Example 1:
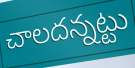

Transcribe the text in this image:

చాలదన్నట్టు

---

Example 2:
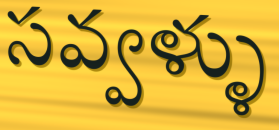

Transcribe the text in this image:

సవ్వళ్ళు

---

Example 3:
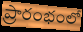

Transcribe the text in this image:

ప్రారంభంలో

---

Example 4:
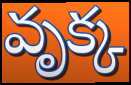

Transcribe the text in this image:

వృక్క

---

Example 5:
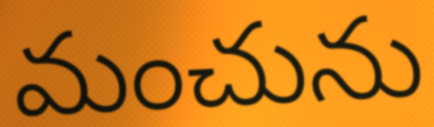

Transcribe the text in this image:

మంచును